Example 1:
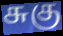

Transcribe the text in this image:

சுகு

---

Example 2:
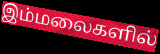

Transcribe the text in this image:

இம்மலைகளில்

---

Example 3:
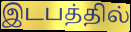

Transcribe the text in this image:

இடபத்தில்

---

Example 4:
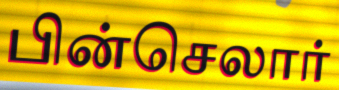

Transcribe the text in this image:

பின்செலார்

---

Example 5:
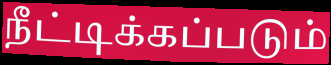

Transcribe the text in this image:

நீட்டிக்கப்படும்